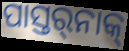
ପାସ୍ତର୍‍ନାକ୍